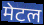
मेटल